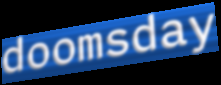
doomsday